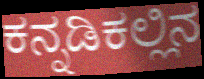
ಕನ್ನಡಿಕಲ್ಲಿನ